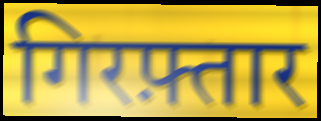
गिरफ़्तार